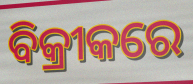
ବିକ୍ରୀକରେ